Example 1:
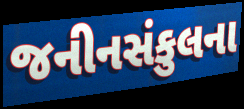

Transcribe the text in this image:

જનીનસંકુલના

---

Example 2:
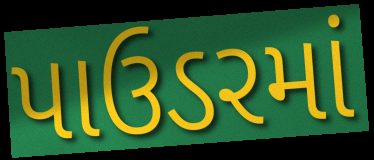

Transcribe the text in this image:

પાઉડરમાં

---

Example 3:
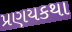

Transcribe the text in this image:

પ્રણયકથા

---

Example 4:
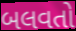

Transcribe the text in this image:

બલવતો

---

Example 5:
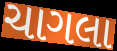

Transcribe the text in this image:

ચાગલા